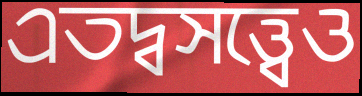
এতদ্বসত্ত্বেও